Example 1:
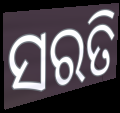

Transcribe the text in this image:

ସରତି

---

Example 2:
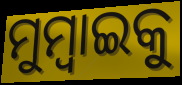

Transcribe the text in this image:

ମୁମ୍ବାଇକୁ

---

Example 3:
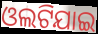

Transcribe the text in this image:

ଓଲଟିଯାଇ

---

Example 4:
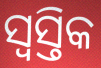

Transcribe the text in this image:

ସ୍ୱସ୍ତିକ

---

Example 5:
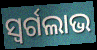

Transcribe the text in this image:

ସ୍ୱର୍ଗଲାଭ